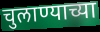
चुलाण्याच्या